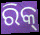
ରିକ୍